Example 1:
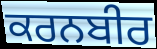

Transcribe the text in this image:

ਕਰਨਬੀਰ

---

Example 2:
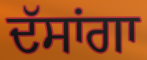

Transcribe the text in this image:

ਦੱਸਾਂਗਾ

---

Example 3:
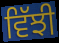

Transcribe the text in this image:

ਵਿੱਝੀ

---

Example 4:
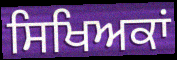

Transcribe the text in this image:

ਸਿਖਿਅਕਾਂ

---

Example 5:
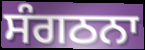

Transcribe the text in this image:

ਸੰਗਠਨਾ